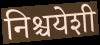
निश्चयेशी